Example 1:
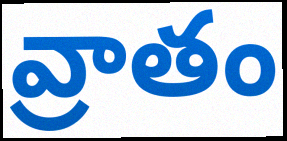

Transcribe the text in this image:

వ్రాతం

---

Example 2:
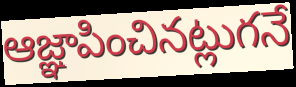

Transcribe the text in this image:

ఆజ్ఞాపించినట్లుగనే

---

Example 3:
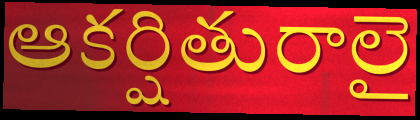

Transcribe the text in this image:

ఆకర్షితురాలై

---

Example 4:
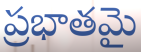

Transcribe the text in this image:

ప్రభాతమై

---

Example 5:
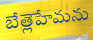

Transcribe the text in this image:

బేత్లెహేమను